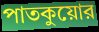
পাতকুয়োর